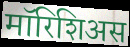
मॉरिशिअस